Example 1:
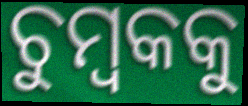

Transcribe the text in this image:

ଚୁମ୍ବକକୁ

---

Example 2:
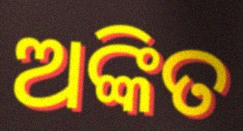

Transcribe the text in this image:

ଅଙ୍କିତ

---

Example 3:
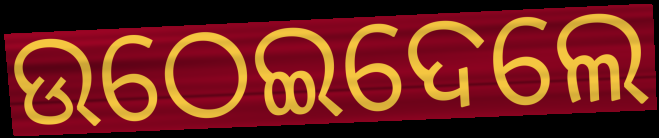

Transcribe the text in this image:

ଉଠେଇଦେଲେ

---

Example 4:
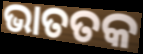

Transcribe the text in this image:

ଭାତତକ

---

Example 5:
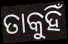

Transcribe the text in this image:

ତାକୁହିଁ